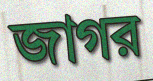
জাগর